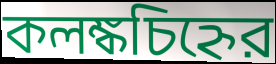
কলঙ্কচিহ্নের